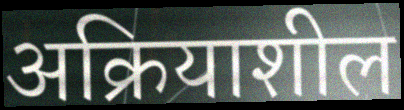
अक्रियाशील